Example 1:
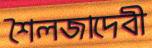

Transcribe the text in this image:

শৈলজাদেবী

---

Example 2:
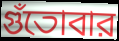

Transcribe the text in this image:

গুঁতোবার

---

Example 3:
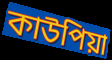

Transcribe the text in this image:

কাউপিয়া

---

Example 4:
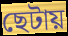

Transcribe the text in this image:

ছেটায়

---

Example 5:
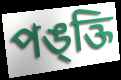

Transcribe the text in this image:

পঙ্‌ক্তি